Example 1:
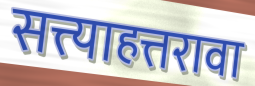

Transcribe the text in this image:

सत्त्याहत्तरावा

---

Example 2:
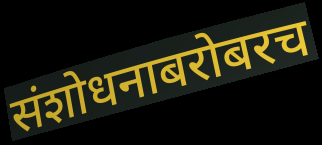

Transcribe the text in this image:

संशोधनाबरोबरच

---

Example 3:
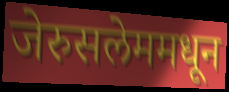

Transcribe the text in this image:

जेरुसलेममधून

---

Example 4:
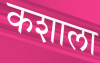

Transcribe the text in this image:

कशाला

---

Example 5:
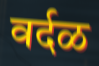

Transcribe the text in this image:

वर्दळ